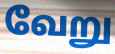
வேறு